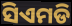
ସିଏମଡି